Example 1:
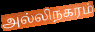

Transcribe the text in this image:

அல்லிநகரம்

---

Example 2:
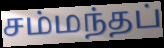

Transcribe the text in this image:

சம்மந்தப்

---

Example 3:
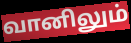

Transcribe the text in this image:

வானிலும்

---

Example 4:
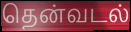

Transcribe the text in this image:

தென்வடல்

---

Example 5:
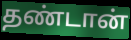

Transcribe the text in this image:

தண்டான்